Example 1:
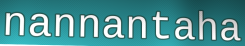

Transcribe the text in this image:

nannantaha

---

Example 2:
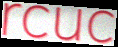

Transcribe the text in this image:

rcuc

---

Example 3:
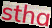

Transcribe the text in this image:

stha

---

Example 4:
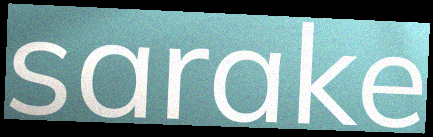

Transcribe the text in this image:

sarake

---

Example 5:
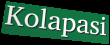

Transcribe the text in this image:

Kolapasi